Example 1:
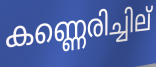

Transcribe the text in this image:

കണ്ണെരിച്ചില്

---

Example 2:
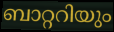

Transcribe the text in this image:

ബാറ്ററിയും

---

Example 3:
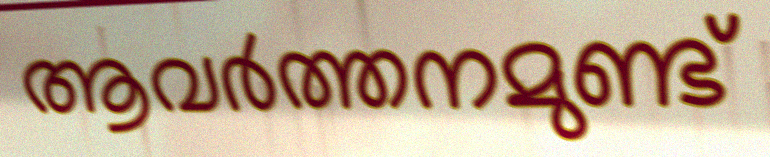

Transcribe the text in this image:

ആവർത്തനമുണ്ട്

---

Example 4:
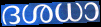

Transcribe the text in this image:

ദശധാ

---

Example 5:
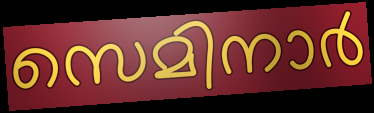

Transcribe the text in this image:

സെമിനാർ